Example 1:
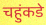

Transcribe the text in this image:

चहुंकडे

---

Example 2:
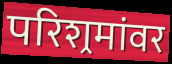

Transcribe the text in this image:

परिश्रमांवर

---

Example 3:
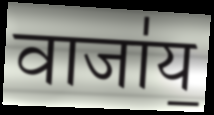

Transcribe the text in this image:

वाजा॑य॒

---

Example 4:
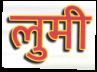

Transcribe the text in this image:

लुमी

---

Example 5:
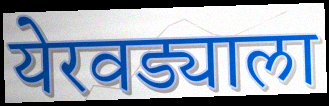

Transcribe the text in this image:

येरवड्याला